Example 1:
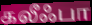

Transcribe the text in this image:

கலீஃபா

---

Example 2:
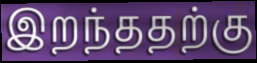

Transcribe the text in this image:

இறந்ததற்கு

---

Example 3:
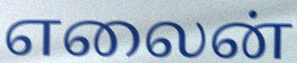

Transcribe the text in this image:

எலைன்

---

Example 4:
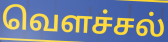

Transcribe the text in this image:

வெளச்சல்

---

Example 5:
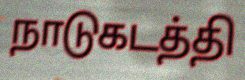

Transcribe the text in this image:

நாடுகடத்தி